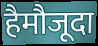
हैमौजूदा